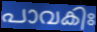
പാവകിഃ